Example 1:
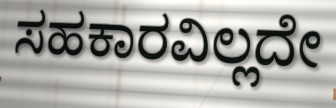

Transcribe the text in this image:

ಸಹಕಾರವಿಲ್ಲದೇ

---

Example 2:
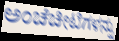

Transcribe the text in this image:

ಅಂಚೆಚೀಟಿಗಳನ್ನು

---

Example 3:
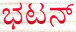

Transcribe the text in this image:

ಭಟನ್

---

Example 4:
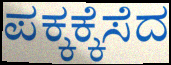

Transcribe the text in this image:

ಪಕ್ಕಕ್ಕೆಸೆದ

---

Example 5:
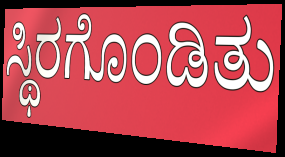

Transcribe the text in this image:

ಸ್ಥಿರಗೊಂಡಿತು